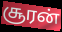
சூரன்